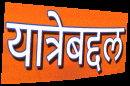
यात्रेबद्दल